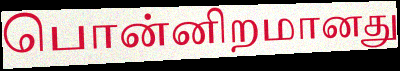
பொன்னிறமானது